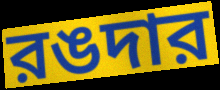
রঙদার